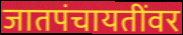
जातपंचायतींवर